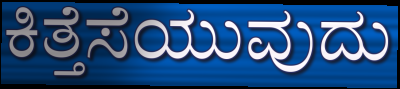
ಕಿತ್ತೆಸೆಯುವುದು